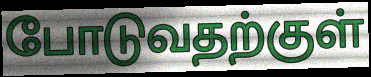
போடுவதற்குள்